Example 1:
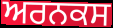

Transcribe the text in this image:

ਅਰਨਕਸ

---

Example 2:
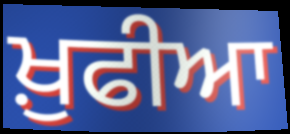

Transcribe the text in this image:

ਖ਼ੁਫੀਆ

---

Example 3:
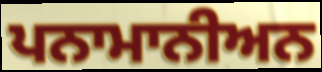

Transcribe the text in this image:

ਪਨਾਮਾਨੀਅਨ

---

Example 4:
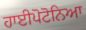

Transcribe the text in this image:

ਹਾਈਪੋਟੋਨਿਆ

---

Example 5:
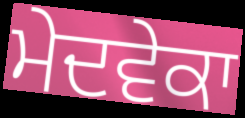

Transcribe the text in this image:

ਮੇਦਵੇਕਾ